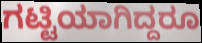
ಗಟ್ಟಿಯಾಗಿದ್ದರೂ